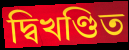
দ্বিখণ্ডিত